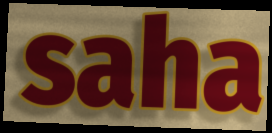
saha